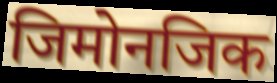
जिमोनजिक